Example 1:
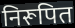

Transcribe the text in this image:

निरूपित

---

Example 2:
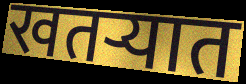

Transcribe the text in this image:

खतऱ्यात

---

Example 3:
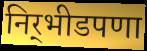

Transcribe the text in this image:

निर्भीडपणा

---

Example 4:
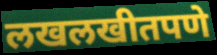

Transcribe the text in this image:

लखलखीतपणे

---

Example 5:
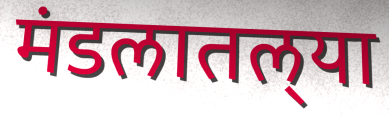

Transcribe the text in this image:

मंडलातल्या